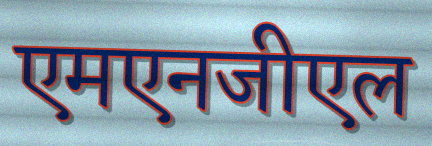
एमएनजीएल